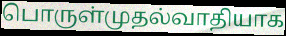
பொருள்முதல்வாதியாக